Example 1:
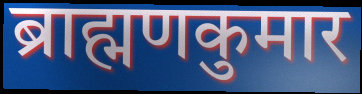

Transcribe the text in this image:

ब्राह्मणकुमार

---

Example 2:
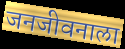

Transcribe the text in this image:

जनजीवनाला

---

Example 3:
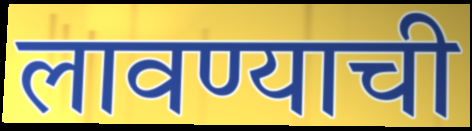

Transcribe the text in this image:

लावण्याची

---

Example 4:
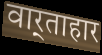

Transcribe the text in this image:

वार्ताहार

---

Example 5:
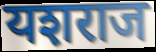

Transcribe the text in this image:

यशराज